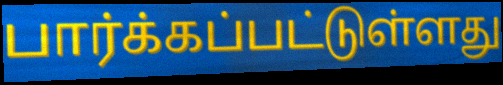
பார்க்கப்பட்டுள்ளது